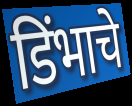
डिंभाचे